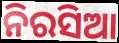
ନିରସିଆ